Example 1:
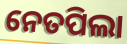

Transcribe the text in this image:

ନେତପିଲା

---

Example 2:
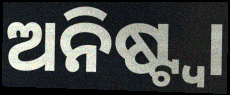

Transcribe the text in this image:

ଅନିଷ୍ଟ୍ୱା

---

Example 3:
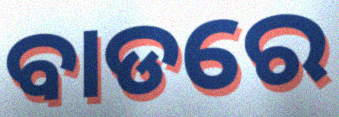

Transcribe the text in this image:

ବାଡରେ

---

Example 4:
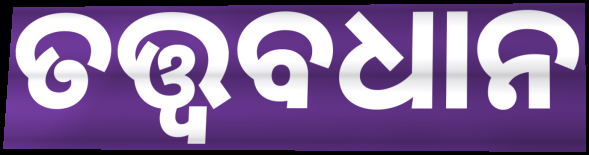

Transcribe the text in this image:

ତତ୍ତ୍ୱବଧାନ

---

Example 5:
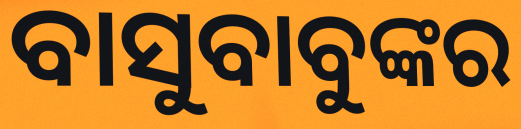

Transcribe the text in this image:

ବାସୁବାବୁଙ୍କର